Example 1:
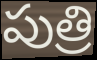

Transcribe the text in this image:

పుత్రి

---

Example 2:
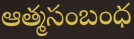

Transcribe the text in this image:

ఆత్మసంబంధ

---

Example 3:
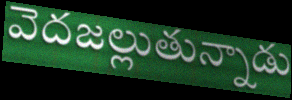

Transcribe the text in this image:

వెదజల్లుతున్నాడు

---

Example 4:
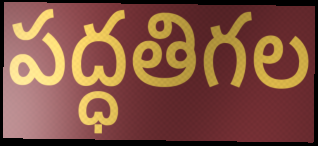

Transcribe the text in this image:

పద్ధతిగల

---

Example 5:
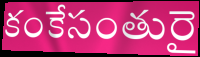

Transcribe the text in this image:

కంకేసంతురై